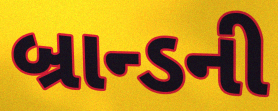
બ્રાન્ડની